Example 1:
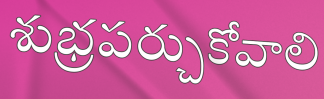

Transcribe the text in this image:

శుభ్రపర్చుకోవాలి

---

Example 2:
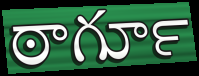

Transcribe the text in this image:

ఠాగూర్‍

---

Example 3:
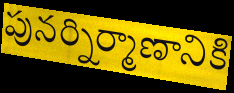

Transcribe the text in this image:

పునర్నిర్మాణానికి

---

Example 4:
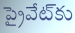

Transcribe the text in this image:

ప్రైవేట్‌కు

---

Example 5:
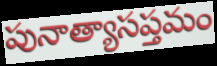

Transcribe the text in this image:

పునాత్యాసప్తమం